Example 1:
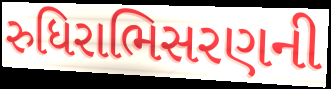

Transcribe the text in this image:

રુધિરાભિસરણની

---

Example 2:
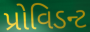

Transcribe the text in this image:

પ્રોવિડન્ટ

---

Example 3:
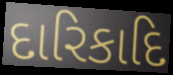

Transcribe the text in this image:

દારિકાદિ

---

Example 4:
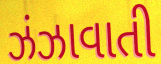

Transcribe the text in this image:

ઝંઝાવાતી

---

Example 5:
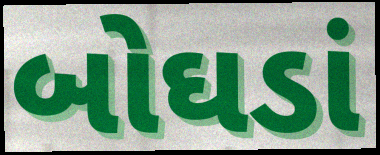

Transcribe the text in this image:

બોઘડાં